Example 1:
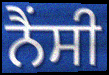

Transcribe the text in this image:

ਨੈਂਸੀ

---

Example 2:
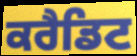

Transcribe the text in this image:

ਕਰੈਡਿਟ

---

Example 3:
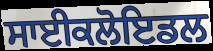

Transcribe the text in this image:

ਸਾਈਕਲੋਇਡਲ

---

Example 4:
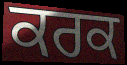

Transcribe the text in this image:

ਕਰਕ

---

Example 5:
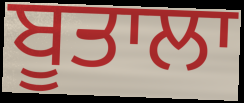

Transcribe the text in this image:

ਬੂਤਾਲਾ